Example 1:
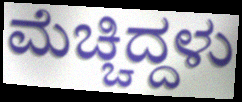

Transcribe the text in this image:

ಮೆಚ್ಚಿದ್ದಳು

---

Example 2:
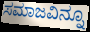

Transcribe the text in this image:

ಸಮಾಜವಿನ್ನೂ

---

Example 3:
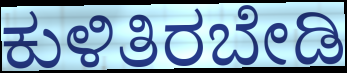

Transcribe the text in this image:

ಕುಳಿತಿರಬೇಡಿ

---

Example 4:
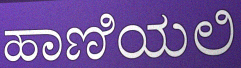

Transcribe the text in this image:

ಹಾಣಿಯಲಿ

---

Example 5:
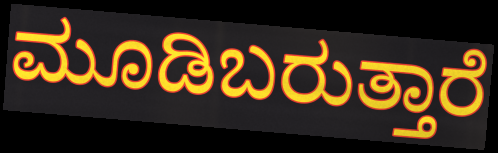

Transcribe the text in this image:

ಮೂಡಿಬರುತ್ತಾರೆ